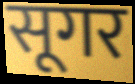
सूगर